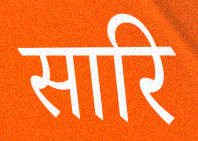
सारि